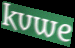
kuwe